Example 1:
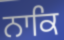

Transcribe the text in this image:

ਨਾਕਿ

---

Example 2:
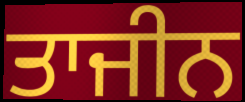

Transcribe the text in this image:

ਤਾਜੀਨ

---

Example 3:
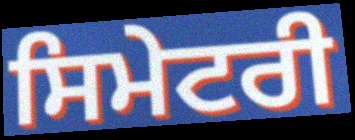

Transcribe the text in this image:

ਸਿਮੇਟਰੀ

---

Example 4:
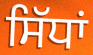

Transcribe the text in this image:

ਸਿੱਧਾਂ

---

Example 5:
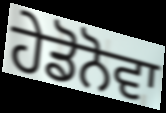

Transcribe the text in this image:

ਹੇਡੋਨੋਵਾ